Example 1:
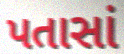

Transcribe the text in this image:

પતાસાં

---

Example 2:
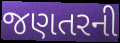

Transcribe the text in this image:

જણતરની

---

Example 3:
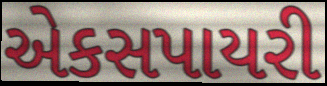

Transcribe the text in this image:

એકસપાયરી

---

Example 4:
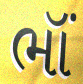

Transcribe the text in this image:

ભૉં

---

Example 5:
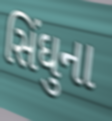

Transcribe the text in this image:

સિંઘુના